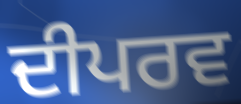
ਦੀਪਰਵ